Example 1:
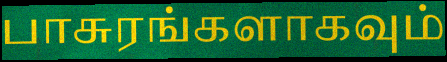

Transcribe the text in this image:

பாசுரங்களாகவும்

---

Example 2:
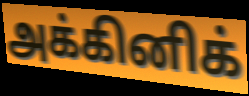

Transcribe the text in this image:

அக்கினிக்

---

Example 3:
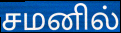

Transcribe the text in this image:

சமனில்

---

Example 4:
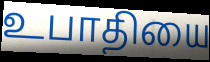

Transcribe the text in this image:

உபாதியை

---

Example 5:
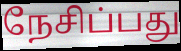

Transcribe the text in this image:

நேசிப்பது